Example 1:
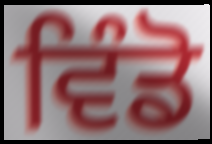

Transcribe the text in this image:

ਵਿੰਡੋ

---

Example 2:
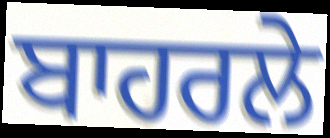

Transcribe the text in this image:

ਬਾਹਰਲੇ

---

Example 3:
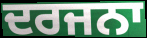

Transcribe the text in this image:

ਦਰਜਨਾ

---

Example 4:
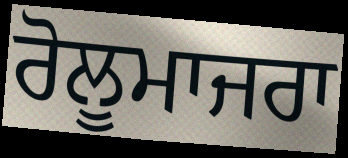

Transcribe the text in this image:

ਰੋਲੂਮਾਜਰਾ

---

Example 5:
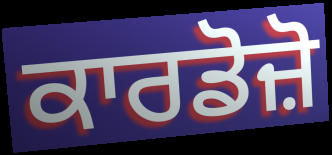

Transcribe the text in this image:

ਕਾਰਡੋਜ਼ੋ